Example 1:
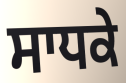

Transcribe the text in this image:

ਸਾਧਕੇ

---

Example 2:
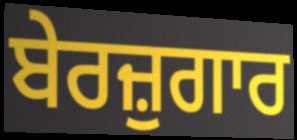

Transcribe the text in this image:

ਬੇਰਜ਼ੁਗਾਰ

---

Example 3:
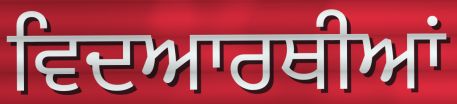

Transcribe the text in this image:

ਵਿਦਆਰਥੀਆਂ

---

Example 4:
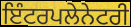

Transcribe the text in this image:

ਇੰਟਰਪਲੇਨੇਟਰੀ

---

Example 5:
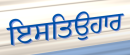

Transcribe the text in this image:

ਇਸਤਿਉਹਾਰ